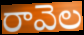
రావెల